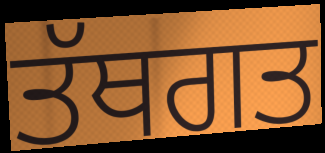
ਤੱਥਗਤ